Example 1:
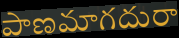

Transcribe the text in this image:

పాణమాగదురా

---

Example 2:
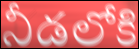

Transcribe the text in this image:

నీడలోకి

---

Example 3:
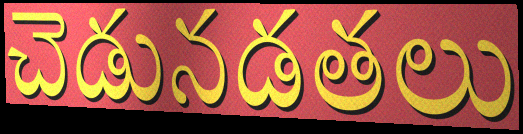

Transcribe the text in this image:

చెడునడతలు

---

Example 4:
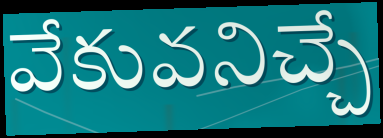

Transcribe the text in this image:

వేకువనిచ్చే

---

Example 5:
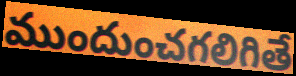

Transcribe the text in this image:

ముందుంచగలిగితే